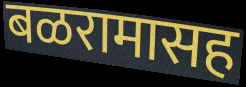
बळरामासह